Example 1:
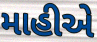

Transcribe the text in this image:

માહીએ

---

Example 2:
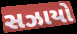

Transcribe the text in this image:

સઝાયો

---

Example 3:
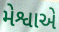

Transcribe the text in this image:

મેશ્વાએ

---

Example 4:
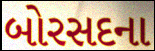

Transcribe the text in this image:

બોરસદના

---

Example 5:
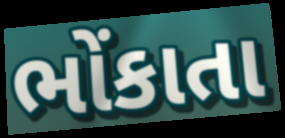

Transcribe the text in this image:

ભોંકાતા